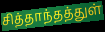
சித்தாந்தத்துள்